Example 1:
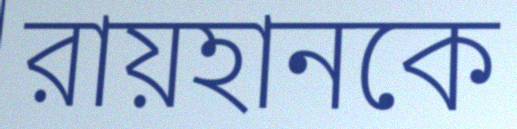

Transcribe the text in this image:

রায়হানকে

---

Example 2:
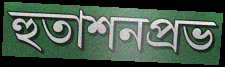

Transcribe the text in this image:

হুতাশনপ্রভ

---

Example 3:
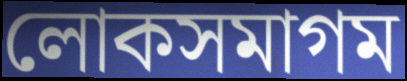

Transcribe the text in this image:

লোকসমাগম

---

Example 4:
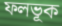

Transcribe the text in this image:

ফলভূক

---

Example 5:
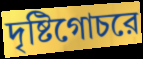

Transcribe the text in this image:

দৃষ্টিগোচরে